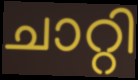
ചാറ്റി